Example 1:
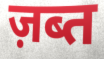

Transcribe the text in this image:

ज़ब्त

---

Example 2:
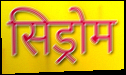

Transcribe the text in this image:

सिड्रोम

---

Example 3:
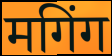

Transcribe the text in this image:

मगिंग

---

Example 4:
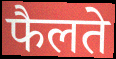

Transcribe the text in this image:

फैलते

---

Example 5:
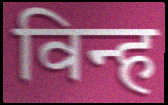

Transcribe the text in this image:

विन्ह